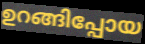
ഉറങ്ങിപ്പോയ